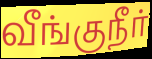
வீங்குநீர்